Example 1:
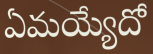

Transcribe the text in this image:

ఏమయ్యేదో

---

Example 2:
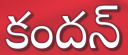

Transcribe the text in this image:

కందన్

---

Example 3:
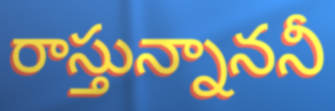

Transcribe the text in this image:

రాస్తున్నాననీ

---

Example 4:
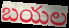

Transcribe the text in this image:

బయల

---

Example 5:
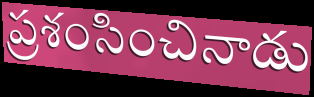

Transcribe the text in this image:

ప్రశంసించినాడు